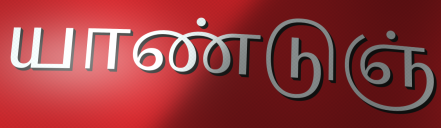
யாண்டுஞ்